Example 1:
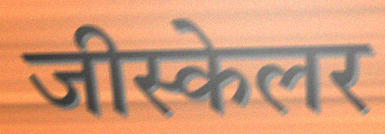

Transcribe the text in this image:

जीस्केलर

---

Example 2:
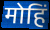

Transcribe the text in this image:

मोहिं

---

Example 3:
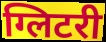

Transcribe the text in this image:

ग्लिटरी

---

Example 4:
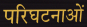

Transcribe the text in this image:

परिघटनाओं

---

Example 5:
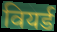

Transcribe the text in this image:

वियर्ड